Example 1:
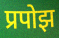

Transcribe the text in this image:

प्रपोझ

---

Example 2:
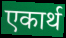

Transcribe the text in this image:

एकार्थ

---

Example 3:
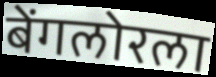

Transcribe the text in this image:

बेंगलोरला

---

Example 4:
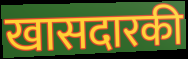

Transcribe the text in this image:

खासदारकी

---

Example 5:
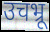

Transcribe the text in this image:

उचभ्रू